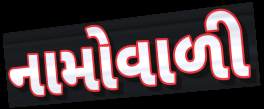
નામોવાળી